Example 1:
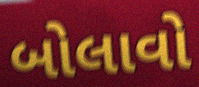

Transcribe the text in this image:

બોલાવો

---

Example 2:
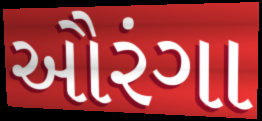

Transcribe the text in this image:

ઔરંગા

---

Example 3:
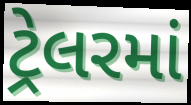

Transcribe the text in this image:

ટ્રેલરમાં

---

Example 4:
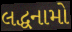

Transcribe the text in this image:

લદ્ધનામો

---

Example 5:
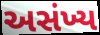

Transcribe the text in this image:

અસંખ્ય